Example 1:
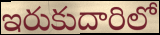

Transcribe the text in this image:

ఇరుకుదారిలో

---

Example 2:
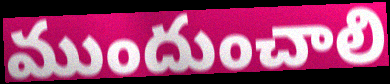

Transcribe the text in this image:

ముందుంచాలి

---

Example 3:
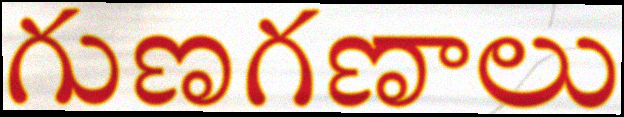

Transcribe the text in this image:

గుణగణాలు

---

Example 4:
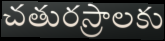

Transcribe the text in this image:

చతురస్రాలకు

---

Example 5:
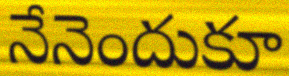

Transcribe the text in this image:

నేనెందుకూ